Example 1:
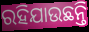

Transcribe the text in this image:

ରହିଯାଉଛନ୍ତି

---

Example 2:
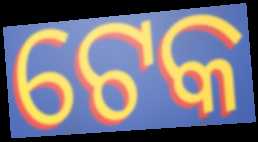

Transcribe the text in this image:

ଟେକ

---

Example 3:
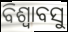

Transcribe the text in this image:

ବିଶ୍ୱାବସୁ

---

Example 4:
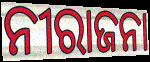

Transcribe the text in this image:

ନୀରାଜନା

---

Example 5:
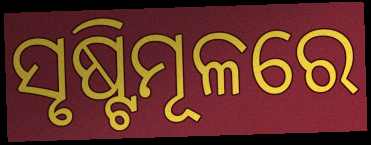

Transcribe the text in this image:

ସୃଷ୍ଟିମୂଳରେ